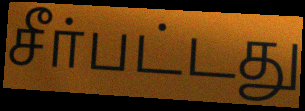
சீர்பட்டது